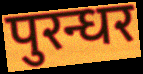
पुरन्धर